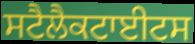
ਸਟੈਲੈਕਟਾਈਟਸ